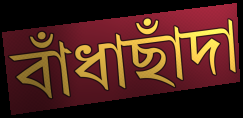
বাঁধাছাঁদা